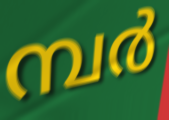
മ്പർ